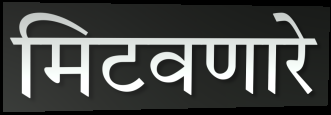
मिटवणारे